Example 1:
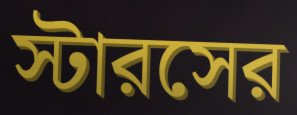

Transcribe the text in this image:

স্টারসের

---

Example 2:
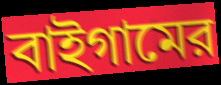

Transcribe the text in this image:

বাইগামের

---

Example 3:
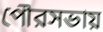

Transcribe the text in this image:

পৌরসভায়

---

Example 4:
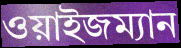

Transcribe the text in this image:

ওয়াইজম্যান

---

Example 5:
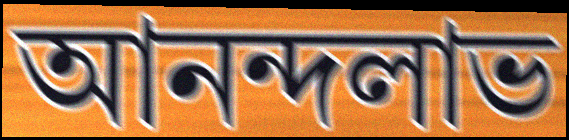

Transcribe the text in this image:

আনন্দলাভ